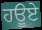
ਹਊਏ